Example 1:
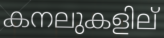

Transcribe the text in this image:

കനലുകളില്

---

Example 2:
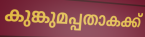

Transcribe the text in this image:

കുങ്കുമപ്പതാകക്ക്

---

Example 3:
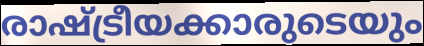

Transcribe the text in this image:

രാഷ്ട്രീയക്കാരുടെയും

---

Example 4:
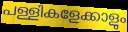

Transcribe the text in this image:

പള്ളികളേക്കാളും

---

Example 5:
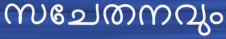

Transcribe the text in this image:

സചേതനവും